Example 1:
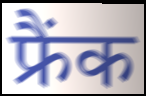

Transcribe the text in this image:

फ्रैंक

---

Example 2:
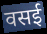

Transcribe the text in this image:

वसई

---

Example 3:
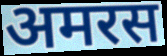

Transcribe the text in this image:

अमरस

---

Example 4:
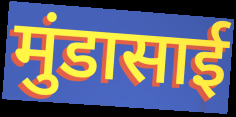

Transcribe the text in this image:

मुंडासाई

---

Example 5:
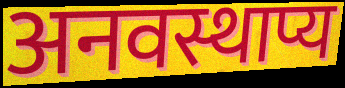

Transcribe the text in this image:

अनवस्थाप्य